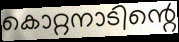
കൊറ്റനാടിന്റെ